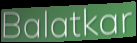
Balatkar